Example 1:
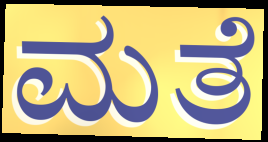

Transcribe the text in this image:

ಮತೆ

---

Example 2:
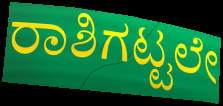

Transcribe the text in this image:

ರಾಶಿಗಟ್ಟಲೇ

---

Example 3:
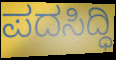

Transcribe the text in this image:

ಪದಸಿದ್ಧಿ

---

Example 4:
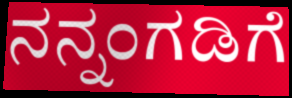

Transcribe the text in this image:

ನನ್ನಂಗಡಿಗೆ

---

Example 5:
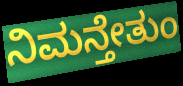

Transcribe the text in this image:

ನಿಮನ್ತೇತುಂ